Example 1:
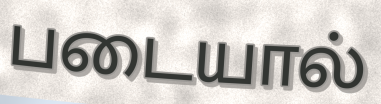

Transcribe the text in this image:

படையால்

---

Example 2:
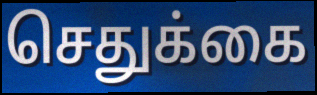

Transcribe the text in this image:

செதுக்கை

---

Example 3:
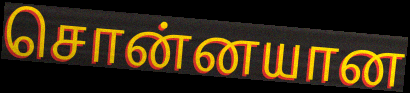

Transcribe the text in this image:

சொன்னயான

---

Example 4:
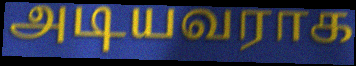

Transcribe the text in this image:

அடியவராக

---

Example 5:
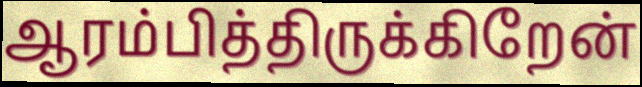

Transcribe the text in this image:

ஆரம்பித்திருக்கிறேன்